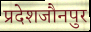
प्रदेशजौनपुर